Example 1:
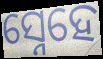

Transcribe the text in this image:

ସ୍ନେହେ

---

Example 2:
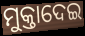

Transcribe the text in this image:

ମୁକ୍ତାଦେଇ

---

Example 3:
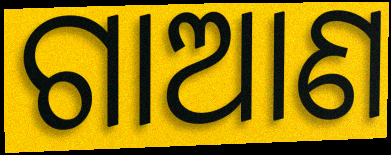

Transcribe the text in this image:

ଗାଆଣ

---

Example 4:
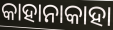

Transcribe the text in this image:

କାହାନାକାହା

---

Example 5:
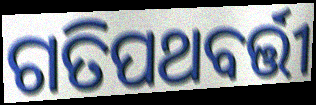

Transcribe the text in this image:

ଗତିପଥବର୍ତ୍ତୀ